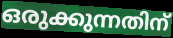
ഒരുക്കുന്നതിന്